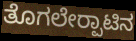
ತೊಗಲೇರ‍್ಪಾಟಿನ